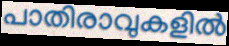
പാതിരാവുകളിൽ